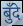
बुँदे